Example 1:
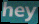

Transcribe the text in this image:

hey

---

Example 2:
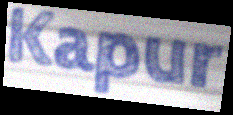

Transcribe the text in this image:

Kapur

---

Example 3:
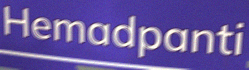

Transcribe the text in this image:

Hemadpanti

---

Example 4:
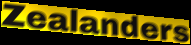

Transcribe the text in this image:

Zealanders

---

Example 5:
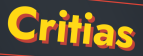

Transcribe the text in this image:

Critias